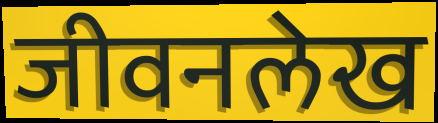
जीवनलेख